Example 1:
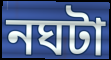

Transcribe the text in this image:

নঘটা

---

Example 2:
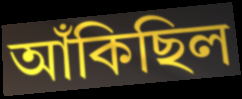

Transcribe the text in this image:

আঁকিছিল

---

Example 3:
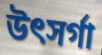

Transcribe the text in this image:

উৎসৰ্গা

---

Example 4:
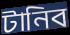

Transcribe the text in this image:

টানিব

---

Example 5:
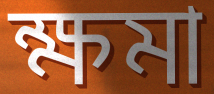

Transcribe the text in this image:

ক্ষমা